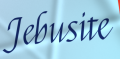
Jebusite